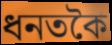
ধনতকৈ